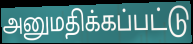
அனுமதிக்கப்பட்டு